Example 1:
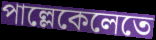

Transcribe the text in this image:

পাল্লেকেলেতে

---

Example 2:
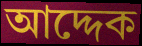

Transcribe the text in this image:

আদ্দেক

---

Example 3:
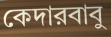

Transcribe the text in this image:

কেদারবাবু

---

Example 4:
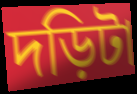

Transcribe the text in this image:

দড়িটা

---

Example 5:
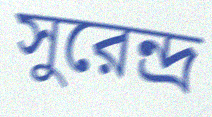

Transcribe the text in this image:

সুরেন্দ্র